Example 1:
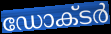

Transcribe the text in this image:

ഡോക്‌ടർ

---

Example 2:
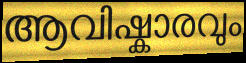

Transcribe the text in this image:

ആവിഷ്കാരവും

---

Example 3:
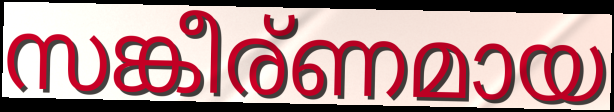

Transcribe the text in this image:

സങ്കീര്ണമായ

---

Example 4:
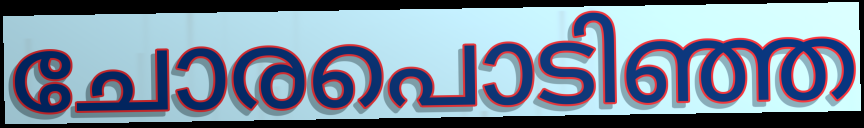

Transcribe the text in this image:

ചോരപൊടിഞ്ഞ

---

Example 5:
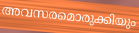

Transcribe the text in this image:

അവസരമൊരുക്കിയും